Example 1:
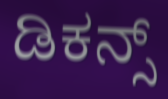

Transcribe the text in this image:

ಡಿಕನ್ಸ್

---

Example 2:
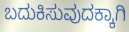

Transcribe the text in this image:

ಬದುಕಿಸುವುದಕ್ಕಾಗಿ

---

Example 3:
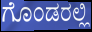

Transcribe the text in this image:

ಗೊಂಡರಲ್ಲಿ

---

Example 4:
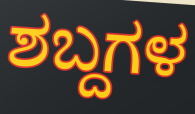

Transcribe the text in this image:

ಶಬ್ದಗಳ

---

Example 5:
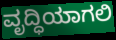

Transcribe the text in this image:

ವೃದ್ಧಿಯಾಗಲಿ